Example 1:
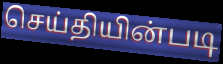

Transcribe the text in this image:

செய்தியின்படி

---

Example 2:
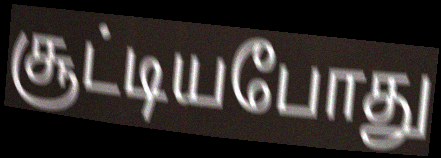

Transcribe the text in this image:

சூட்டியபோது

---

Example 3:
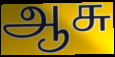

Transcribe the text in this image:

ஆசு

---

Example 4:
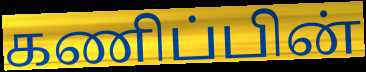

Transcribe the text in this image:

கணிப்பின்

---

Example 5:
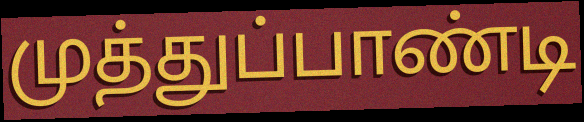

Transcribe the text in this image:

முத்துப்பாண்டி